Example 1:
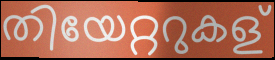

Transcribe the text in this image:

തിയേറ്ററുകള്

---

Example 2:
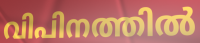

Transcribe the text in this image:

വിപിനത്തിൽ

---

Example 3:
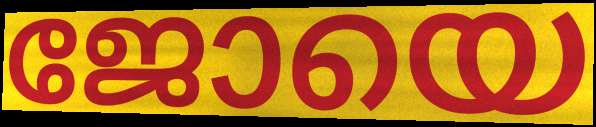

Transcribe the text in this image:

ജോയെ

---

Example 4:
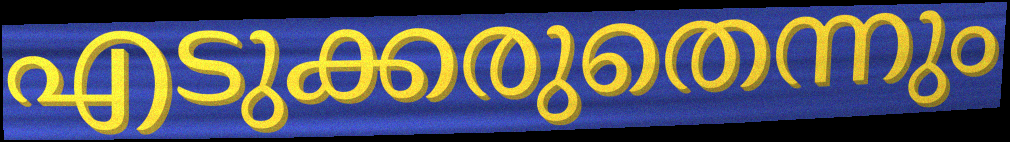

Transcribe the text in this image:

എടുക്കരുതെന്നും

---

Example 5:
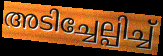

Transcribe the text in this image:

അടിച്ചേല്പിച്ച്